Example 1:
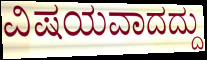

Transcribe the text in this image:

ವಿಷಯವಾದದ್ದು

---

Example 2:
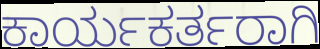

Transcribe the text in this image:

ಕಾರ್ಯಕರ್ತರಾಗಿ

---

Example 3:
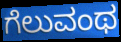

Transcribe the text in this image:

ಗೆಲುವಂಥ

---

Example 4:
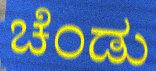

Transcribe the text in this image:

ಚೆಂಡು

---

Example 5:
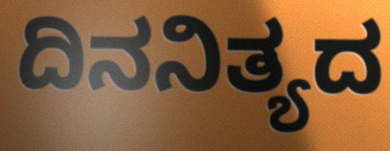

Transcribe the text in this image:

ದಿನನಿತ್ಯದ